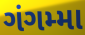
ગંગમ્મા